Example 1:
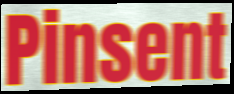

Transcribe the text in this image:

Pinsent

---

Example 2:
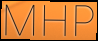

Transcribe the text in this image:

MHP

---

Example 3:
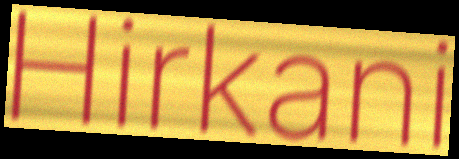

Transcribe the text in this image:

Hirkani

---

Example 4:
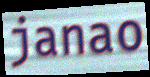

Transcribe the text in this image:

janao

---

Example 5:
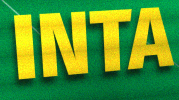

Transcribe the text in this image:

INTA